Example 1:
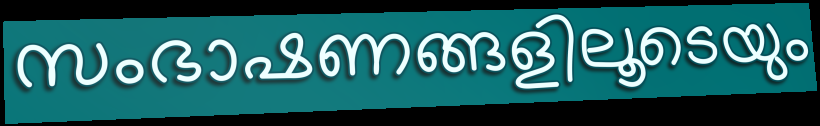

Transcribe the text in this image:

സംഭാഷണങ്ങളിലൂടെയും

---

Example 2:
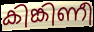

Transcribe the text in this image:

കിങ്കിണീ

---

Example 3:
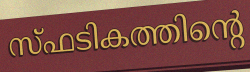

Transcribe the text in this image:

സ്ഫടികത്തിന്റെ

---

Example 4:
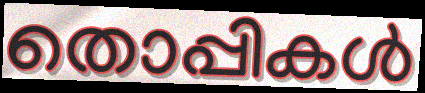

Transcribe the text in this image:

തൊപ്പികൾ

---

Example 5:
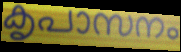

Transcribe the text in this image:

കൃപാസനം